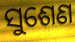
ସୁଶେଣ